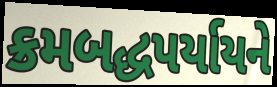
ક્રમબદ્ધપર્યાયને